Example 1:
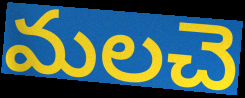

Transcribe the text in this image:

మలచె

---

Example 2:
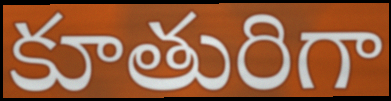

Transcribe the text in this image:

కూతురిగా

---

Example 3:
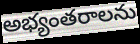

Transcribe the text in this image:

అభ్యంతరాలను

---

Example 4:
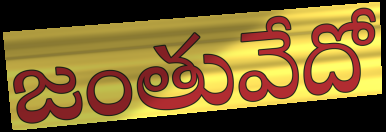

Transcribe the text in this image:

జంతువేదో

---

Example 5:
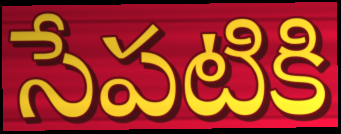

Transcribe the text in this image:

సేపటికి